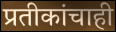
प्रतीकांचाही